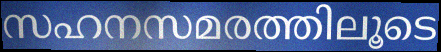
സഹനസമരത്തിലൂടെ